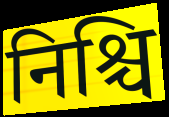
निश्चि